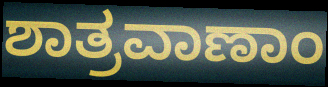
ಶಾತ್ರವಾಣಾಂ